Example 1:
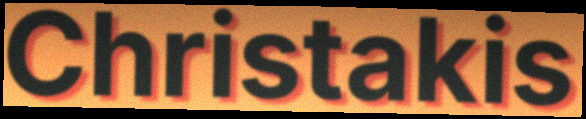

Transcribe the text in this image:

Christakis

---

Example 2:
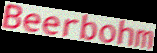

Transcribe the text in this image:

Beerbohm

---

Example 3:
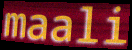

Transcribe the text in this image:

maali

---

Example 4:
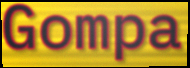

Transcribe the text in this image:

Gompa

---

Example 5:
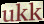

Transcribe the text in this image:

ukk